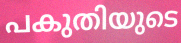
പകുതിയുടെ